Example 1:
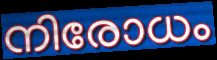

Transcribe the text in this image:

നിരോധം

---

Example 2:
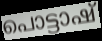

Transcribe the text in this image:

പൊട്ടാഷ്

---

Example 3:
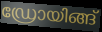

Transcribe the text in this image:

ഡ്രോയിങ്ങ്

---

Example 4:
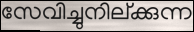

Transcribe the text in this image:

സേവിച്ചുനില്ക്കുന്ന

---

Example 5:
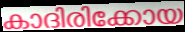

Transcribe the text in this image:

കാദിരിക്കോയ